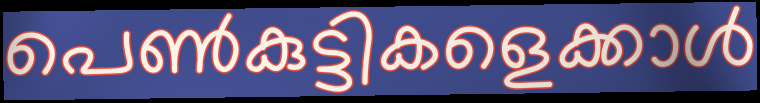
പെൺകുട്ടികളെക്കാൾ